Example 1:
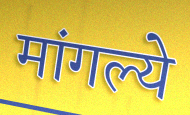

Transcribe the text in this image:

मांगल्ये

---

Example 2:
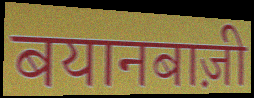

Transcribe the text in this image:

बयानबाज़ी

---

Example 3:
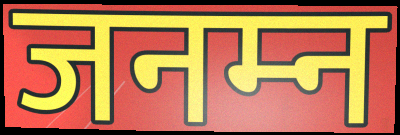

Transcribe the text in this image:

जनम्न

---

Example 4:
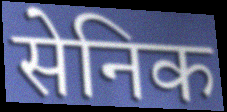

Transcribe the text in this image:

सेनिक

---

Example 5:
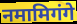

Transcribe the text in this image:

नमामिगंगे